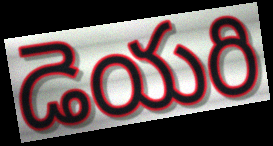
డెయరి